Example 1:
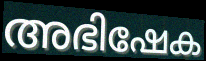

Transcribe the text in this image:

അഭിഷേക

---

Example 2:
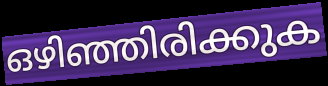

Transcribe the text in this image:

ഒഴിഞ്ഞിരിക്കുക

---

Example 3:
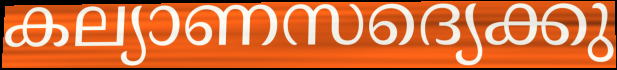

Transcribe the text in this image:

കല്യാണസദ്യെക്കു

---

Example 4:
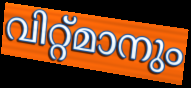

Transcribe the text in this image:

വിറ്റ്മാനും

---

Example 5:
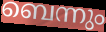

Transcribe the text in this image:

ബെന്നും